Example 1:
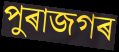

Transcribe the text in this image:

পুৰাজগৰ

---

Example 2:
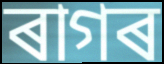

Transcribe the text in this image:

ৰাগৰ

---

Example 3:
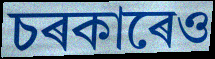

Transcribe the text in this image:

চৰকাৰেও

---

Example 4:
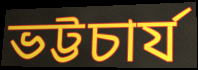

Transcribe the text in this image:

ভট্টচাৰ্য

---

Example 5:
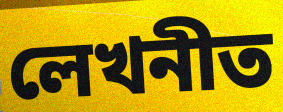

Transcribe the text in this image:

লেখনীত